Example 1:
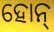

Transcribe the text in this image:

ହୋନ୍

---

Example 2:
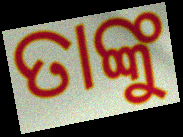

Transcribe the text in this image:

ତାଙ୍କୁ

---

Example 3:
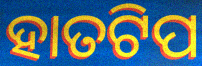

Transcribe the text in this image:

ହାତଟିପ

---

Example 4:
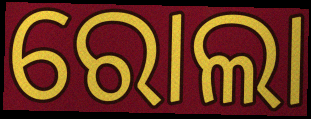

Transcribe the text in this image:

ରୋଲା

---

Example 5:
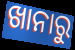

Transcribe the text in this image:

ଖାନାରୁ